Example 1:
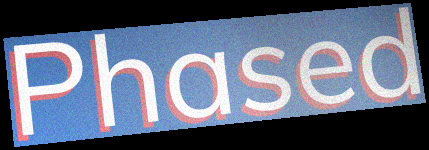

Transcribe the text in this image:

Phased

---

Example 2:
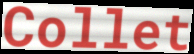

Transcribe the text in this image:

Collet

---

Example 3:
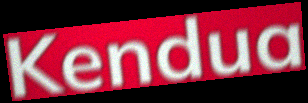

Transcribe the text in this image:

Kendua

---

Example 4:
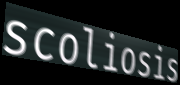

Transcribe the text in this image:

scoliosis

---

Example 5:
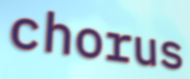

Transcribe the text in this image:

chorus